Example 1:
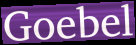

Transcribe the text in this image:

Goebel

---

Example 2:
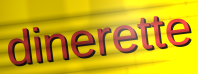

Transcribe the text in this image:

dinerette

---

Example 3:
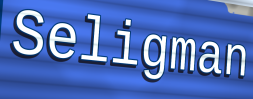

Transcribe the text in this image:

Seligman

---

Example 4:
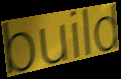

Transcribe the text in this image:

build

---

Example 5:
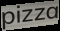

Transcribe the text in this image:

pizza